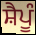
ਸ਼ੈਪੂੰ